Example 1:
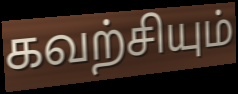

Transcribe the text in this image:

கவற்சியும்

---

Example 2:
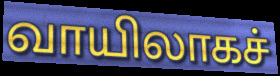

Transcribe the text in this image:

வாயிலாகச்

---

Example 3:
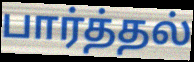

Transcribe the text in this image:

பார்த்தல்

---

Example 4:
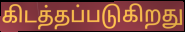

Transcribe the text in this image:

கிடத்தப்படுகிறது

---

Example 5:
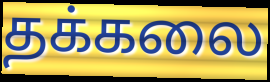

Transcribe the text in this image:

தக்கலை